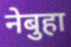
नेबुहा